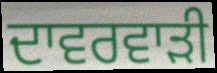
ਦਾਵਰਵਾੜੀ